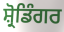
ਸ਼੍ਰੋਡਿੰਗਰ